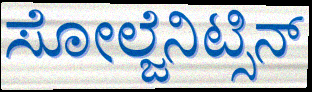
ಸೋಲ್ಜೆನಿಟ್ಸಿನ್